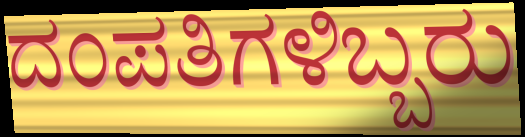
ದಂಪತಿಗಳಿಬ್ಬರು